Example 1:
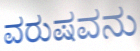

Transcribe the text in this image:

ವರುಷವನು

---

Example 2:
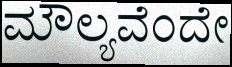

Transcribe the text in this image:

ಮೌಲ್ಯವೆಂದೇ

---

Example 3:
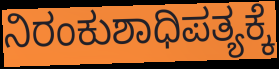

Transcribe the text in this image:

ನಿರಂಕುಶಾಧಿಪತ್ಯಕ್ಕೆ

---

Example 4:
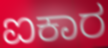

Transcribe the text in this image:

ಐಕಾರ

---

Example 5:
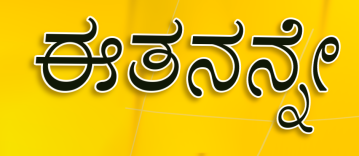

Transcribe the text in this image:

ಈತನನ್ನೇ